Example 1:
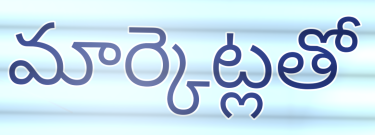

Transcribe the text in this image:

మార్కెట్లతో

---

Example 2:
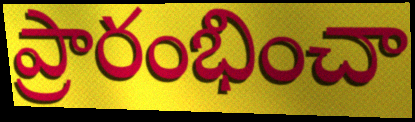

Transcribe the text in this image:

ప్రారంభించా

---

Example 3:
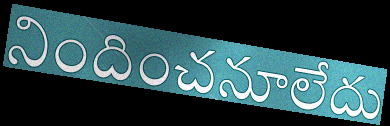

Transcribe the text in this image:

నిందించనూలేదు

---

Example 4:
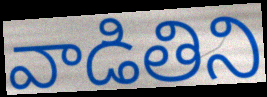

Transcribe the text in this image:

వాడితిని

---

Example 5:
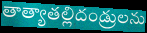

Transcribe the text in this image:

తాత్యాతల్లిదండ్రులను